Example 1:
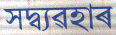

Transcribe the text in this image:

সদ্ব্যৱহাৰ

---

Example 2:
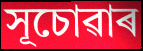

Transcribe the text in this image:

সূচোৱাৰ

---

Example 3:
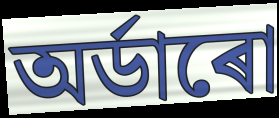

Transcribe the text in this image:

অৰ্ডাৰো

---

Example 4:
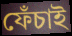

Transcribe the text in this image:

ফেঁচাই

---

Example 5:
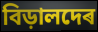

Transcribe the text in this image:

বিড়ালদেৰ